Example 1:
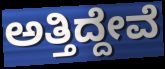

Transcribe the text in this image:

ಅತ್ತಿದ್ದೇವೆ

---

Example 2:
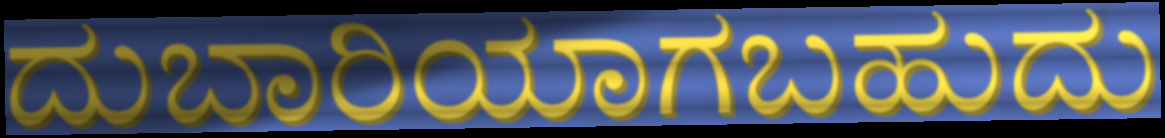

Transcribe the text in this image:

ದುಬಾರಿಯಾಗಬಹುದು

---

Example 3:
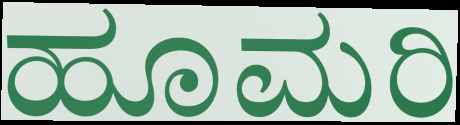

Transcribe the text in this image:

ಹೂಮರಿ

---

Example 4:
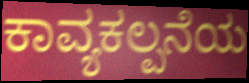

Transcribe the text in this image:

ಕಾವ್ಯಕಲ್ಪನೆಯ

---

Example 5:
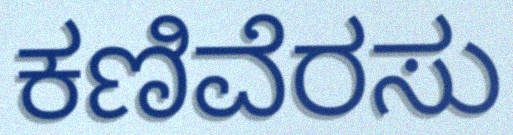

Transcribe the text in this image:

ಕಣಿವೆರಸು